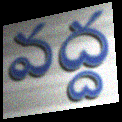
వద్ద